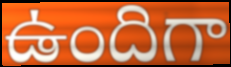
ఉందిగా